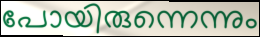
പോയിരുന്നെന്നും